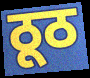
ठूठ